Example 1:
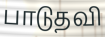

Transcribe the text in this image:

பாடுதவி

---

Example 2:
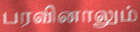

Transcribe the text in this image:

பரவினாலும்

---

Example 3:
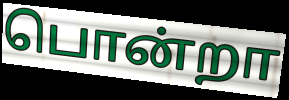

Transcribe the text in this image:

பொன்றா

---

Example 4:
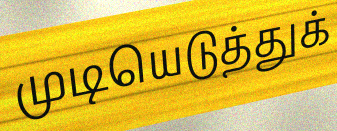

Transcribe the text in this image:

முடியெடுத்துக்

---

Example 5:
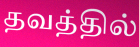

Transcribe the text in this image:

தவத்தில்